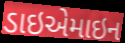
ડાઇએમાઇન